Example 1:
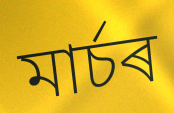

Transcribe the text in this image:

মাৰ্চৰ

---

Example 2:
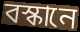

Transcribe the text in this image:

বস্কানে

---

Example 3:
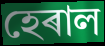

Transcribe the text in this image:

হেৰাল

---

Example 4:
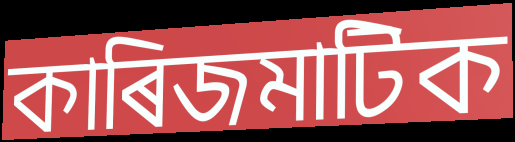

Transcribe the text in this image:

কাৰিজমাটিক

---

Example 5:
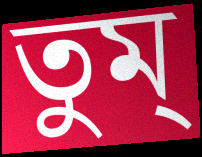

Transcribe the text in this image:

তুম্